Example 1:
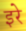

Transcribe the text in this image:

इरे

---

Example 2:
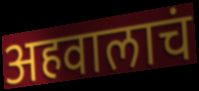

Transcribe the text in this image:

अहवालाचं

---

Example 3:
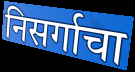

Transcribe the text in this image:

निसर्गाचा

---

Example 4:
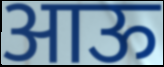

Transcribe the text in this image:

आऊ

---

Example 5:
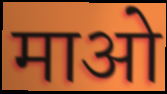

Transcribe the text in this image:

माओ